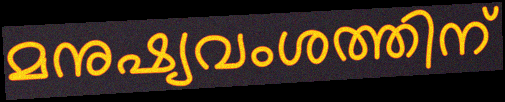
മനുഷ്യവംശത്തിന്